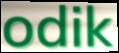
odik